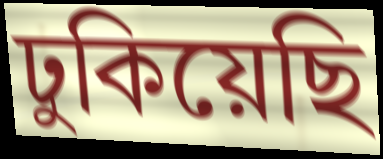
ঢুকিয়েছি